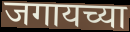
जगायच्या